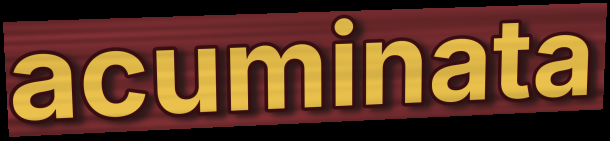
acuminata